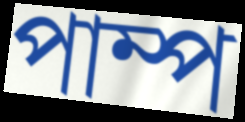
পাম্প